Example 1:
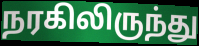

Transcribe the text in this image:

நரகிலிருந்து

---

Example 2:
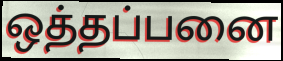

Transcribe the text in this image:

ஒத்தப்பனை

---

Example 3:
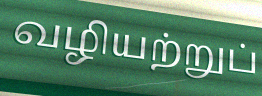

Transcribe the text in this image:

வழியற்றுப்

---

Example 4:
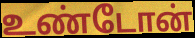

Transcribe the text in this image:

உண்டோன்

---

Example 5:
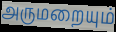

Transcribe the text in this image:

அருமறையும்